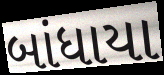
બાંધાયા